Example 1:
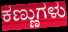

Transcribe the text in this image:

ಕಣ್ಣುಗಳು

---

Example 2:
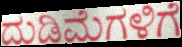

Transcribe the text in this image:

ದುಡಿಮೆಗಳಿಗೆ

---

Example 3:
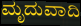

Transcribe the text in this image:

ಮೃದುವಾದಿ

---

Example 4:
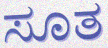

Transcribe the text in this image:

ಸೂತ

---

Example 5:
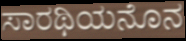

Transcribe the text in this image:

ಸಾರಥಿಯನೊನ